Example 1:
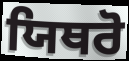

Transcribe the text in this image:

ਯਿਥਰੋ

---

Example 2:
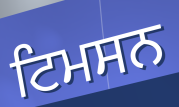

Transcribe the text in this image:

ਟਿਮਸਨ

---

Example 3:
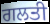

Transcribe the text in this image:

ਗਲਤੀ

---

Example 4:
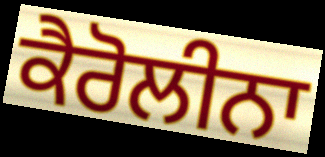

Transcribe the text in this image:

ਕੈਰੋਲੀਨਾ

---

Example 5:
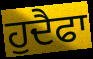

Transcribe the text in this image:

ਹੁਦੈਫਾ